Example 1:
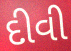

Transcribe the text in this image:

દીવી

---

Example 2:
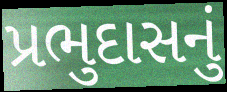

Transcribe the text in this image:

પ્રભુદાસનું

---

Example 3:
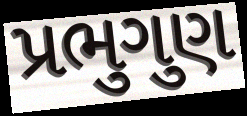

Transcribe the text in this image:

પ્રભુગુણ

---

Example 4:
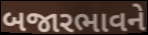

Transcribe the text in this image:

બજારભાવને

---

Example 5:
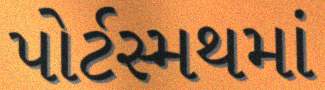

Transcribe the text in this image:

પોર્ટસ્મથમાં